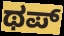
ಥಪ್